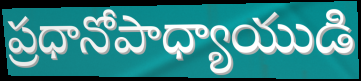
ప్రధానోపాధ్యాయుడి